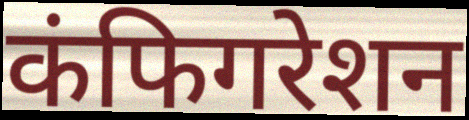
कंफिगरेशन